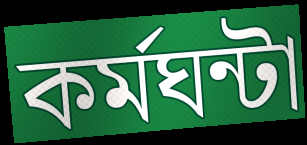
কর্মঘন্টা